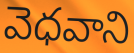
వెధవాని